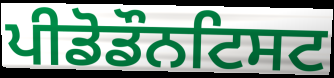
ਪੀਡੋਡੌਨਟਿਸਟ